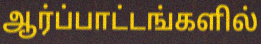
ஆர்ப்பாட்டங்களில்